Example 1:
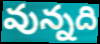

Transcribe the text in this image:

వున్నది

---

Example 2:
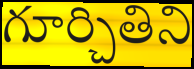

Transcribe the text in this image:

గూర్చితిని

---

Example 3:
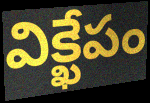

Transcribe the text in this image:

విక్ఖేపం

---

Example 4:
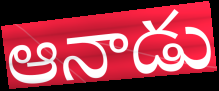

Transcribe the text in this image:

ఆనాడు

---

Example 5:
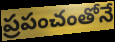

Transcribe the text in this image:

ప్రపంచంతోనే